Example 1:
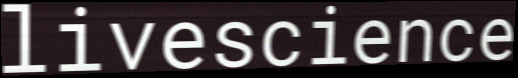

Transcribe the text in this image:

livescience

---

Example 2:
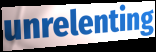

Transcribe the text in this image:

unrelenting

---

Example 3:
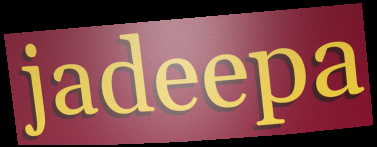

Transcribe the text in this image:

jadeepa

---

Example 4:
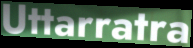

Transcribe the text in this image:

Uttarratra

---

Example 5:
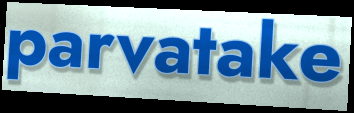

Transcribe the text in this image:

parvatake